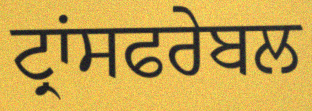
ਟ੍ਰਾਂਸਫਰੇਬਲ